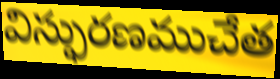
విస్ఫురణముచేత